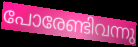
പോരേണ്ടിവന്നു